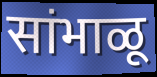
सांभाळू